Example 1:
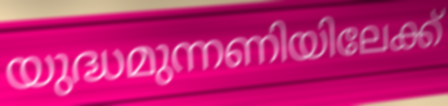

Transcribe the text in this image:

യുദ്ധമുന്നണിയിലേക്ക്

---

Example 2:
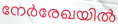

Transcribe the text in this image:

നേർരേഖയിൽ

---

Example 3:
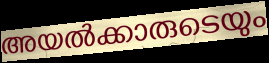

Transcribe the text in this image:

അയൽക്കാരുടെയും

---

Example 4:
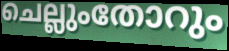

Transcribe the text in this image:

ചെല്ലുംതോറും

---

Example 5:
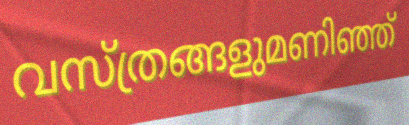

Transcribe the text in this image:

വസ്ത്രങ്ങളുമണിഞ്ഞ്